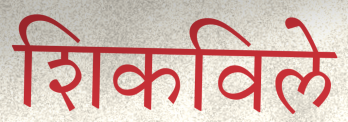
शिकविले